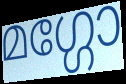
മഗ്ഗോ